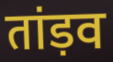
तांड़व